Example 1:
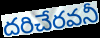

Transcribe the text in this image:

దరిచేరవనీ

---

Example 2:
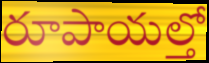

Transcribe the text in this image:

రూపాయల్తో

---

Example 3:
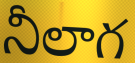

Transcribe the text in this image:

నీలాగ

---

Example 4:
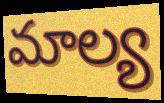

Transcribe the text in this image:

మాల్య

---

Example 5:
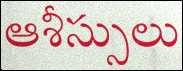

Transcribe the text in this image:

ఆశీస్సులు